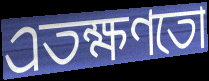
এতক্ষণতো